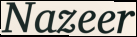
Nazeer